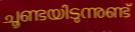
ചൂണ്ടയിടുന്നുണ്ട്